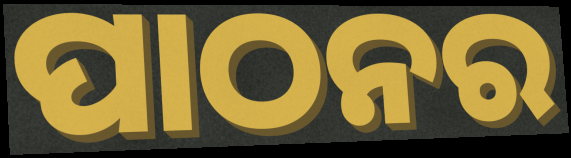
ପାଠନର